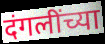
दंगलींच्या